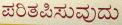
ಪರಿತಪಿಸುವುದು